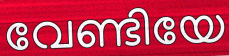
വേണ്ടിയേ